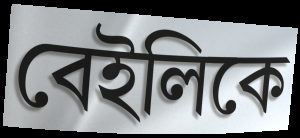
বেইলিকে